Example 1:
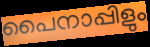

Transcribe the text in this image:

പൈനാപ്പിളും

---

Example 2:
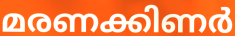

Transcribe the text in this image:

മരണക്കിണർ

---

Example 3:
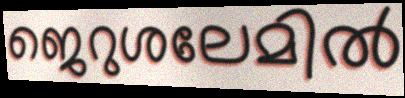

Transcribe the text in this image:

ജെറുശലേമിൽ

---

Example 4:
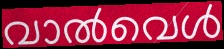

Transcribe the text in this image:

വാൽവെൾ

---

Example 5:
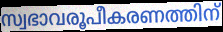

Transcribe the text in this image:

സ്വഭാവരൂപീകരണത്തിന്